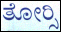
ತೋರ್‍ಸಿ